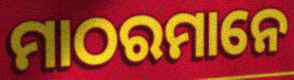
ମାଠରମାନେ